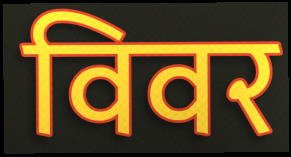
विवर